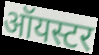
ऑयस्टर